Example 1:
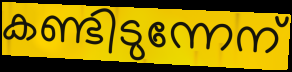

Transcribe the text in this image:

കണ്ടിടുന്നേന്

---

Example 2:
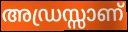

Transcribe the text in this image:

അഡ്രസ്സാണ്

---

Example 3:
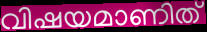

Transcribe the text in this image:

വിഷയമാണിത്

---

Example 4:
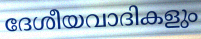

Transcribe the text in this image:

ദേശീയവാദികളും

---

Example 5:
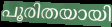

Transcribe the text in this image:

പൂരിതയായി